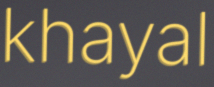
khayal